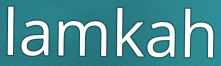
lamkah